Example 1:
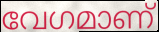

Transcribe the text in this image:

വേഗമാണ്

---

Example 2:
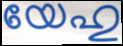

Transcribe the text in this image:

യേഹു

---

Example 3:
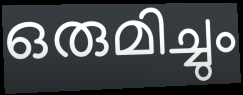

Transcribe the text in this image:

ഒരുമിച്ചും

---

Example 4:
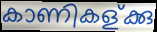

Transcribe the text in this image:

കാണികള്ക്കു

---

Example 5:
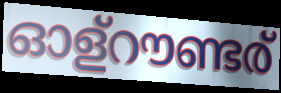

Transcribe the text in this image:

ഓള്റൗണ്ടര്